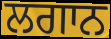
ਲਗਾਨ